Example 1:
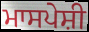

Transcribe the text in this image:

ਮਾਸਪੇਸ਼ੀ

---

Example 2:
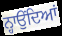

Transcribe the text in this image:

ਨ੍ਹਾਉਂਦਿਆਂ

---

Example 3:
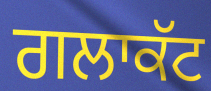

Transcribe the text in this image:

ਗਲਾਕੱਟ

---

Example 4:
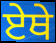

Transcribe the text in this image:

ਏਥੇ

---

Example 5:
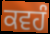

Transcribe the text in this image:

ਕਵਹੰ